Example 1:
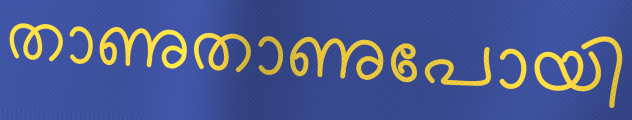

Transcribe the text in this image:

താണുതാണുപോയി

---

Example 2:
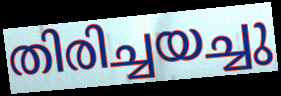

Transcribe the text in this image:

തിരിച്ചയച്ചു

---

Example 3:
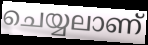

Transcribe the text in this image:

ചെയ്യലാണ്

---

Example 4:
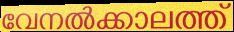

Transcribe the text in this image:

വേനൽക്കാലത്ത്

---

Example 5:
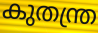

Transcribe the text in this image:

കുതന്ത്ര